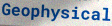
Geophysical